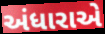
અંધારાએ